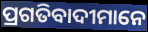
ପ୍ରଗତିବାଦୀମାନେ